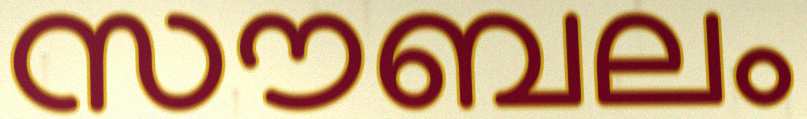
സൗബലം